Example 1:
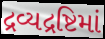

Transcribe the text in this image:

દ્રવ્યદ્રષ્ટિમાં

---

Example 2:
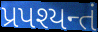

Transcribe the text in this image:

પ્રપશ્યન્તં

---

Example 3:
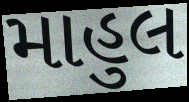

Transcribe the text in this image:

માહુલ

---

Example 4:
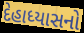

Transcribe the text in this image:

દેહાધ્યાસનો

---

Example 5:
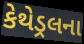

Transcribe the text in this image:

કેથેડ્રલના